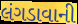
લંગડાવાની